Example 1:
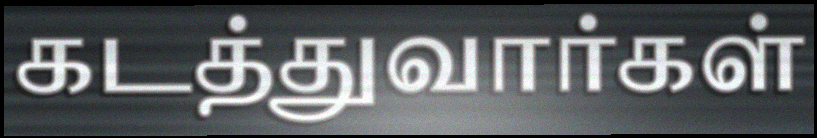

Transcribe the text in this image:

கடத்துவார்கள்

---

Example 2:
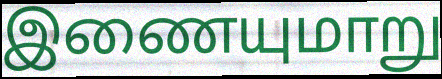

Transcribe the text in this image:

இணையுமாறு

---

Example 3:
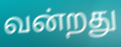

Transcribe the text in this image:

வன்றது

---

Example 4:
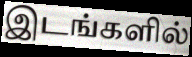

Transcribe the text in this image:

இடங்களில்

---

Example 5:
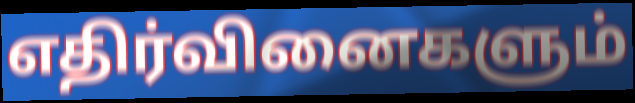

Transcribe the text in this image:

எதிர்வினைகளும்